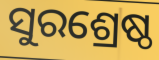
ସୁରଶ୍ରେଷ୍ଠ